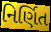
નિર્ણિત